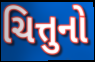
ચિત્તુનો